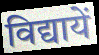
विद्यायें